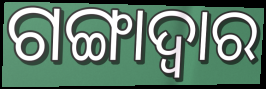
ଗଙ୍ଗାଦ୍ୱାର